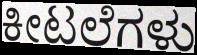
ಕೀಟಲೆಗಳು